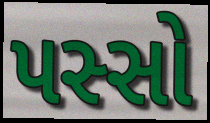
પસ્સો